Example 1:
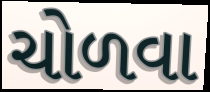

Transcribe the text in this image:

ચોળવા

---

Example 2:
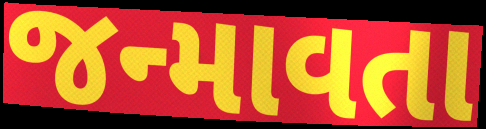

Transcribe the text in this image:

જન્માવતા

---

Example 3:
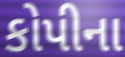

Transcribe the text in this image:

કોપીના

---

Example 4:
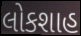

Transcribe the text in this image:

લોકશાહ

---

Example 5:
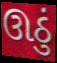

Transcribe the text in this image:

ઊઠું